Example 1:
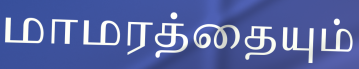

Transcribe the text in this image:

மாமரத்தையும்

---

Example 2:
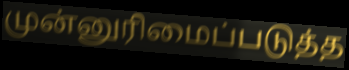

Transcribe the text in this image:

முன்னுரிமைப்படுத்த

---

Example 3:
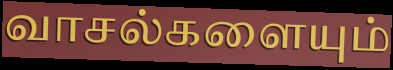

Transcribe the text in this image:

வாசல்களையும்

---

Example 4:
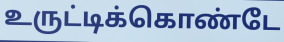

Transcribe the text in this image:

உருட்டிக்கொண்டே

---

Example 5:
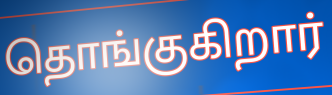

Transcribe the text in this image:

தொங்குகிறார்